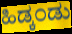
ಹಿಡ್ಕಂಡು